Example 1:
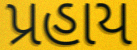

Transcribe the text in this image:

પ્રહાય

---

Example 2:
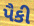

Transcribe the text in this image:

પૈકી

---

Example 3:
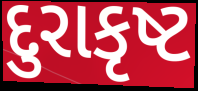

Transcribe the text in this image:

દુરાકૃષ્ટ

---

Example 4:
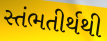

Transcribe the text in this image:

સ્તંભતીર્થથી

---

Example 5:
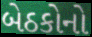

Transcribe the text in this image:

બેઠકોનો